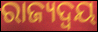
ରାଜ୍ୟଦ୍ୱୟ